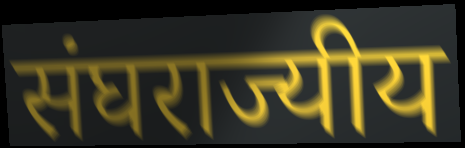
संघराज्यीय